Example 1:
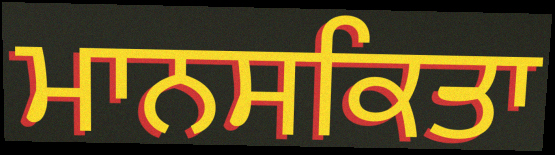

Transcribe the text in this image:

ਮਾਨਸਕਿਤਾ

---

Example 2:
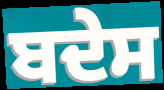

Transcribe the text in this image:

ਬਦੇਸ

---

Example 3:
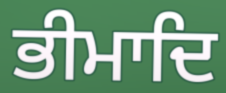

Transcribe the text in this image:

ਭੀਮਾਦਿ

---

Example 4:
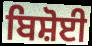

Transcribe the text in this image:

ਬਿਸ਼ੋਈ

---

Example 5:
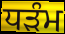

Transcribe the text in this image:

ਧੜੰਮ